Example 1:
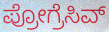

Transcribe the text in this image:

ಪ್ರೋಗ್ರೆಸಿವ್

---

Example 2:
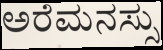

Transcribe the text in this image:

ಅರೆಮನಸ್ಸು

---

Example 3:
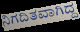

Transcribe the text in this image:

ನಿಗದಿತವಾಗಿದ್ದ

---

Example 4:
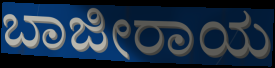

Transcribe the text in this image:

ಬಾಜೀರಾಯ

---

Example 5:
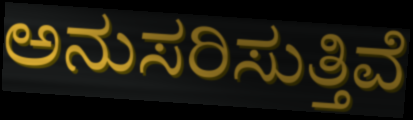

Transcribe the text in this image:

ಅನುಸರಿಸುತ್ತಿವೆ